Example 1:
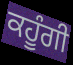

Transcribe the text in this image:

ਕਹੂੰਗੀ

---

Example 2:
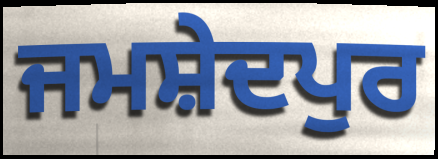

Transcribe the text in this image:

ਜਮਸ਼ੇਦਪੁਰ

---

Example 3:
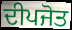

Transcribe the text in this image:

ਦੀਪਜੋਤ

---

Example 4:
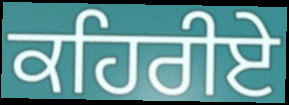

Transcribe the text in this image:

ਕਹਿਰੀਏ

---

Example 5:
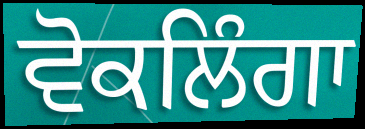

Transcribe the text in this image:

ਵੋਕਲਿੰਗਾ